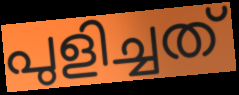
പുളിച്ചത്